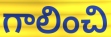
గాలించి